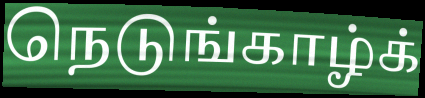
நெடுங்காழ்க்